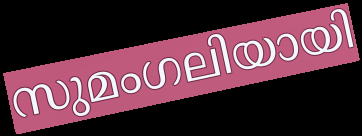
സുമംഗലിയായി